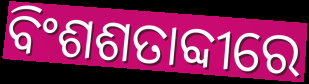
ବିଂଶଶତାବ୍ଦୀରେ